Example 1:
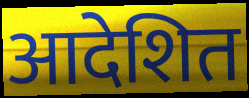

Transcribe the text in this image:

आदेशित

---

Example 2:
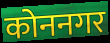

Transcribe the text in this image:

कोननगर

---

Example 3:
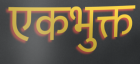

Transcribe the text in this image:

एकभुक्त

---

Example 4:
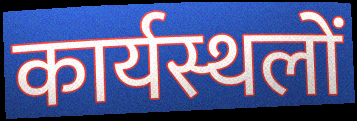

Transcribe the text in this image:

कार्यस्थलों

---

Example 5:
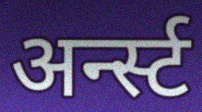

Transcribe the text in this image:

अर्न्स्ट